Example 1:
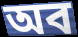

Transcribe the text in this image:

অব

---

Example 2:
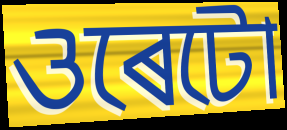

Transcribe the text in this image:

ওৰেটো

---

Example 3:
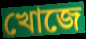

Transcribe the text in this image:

খোজে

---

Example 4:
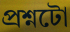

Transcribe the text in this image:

প্ৰশ্নটো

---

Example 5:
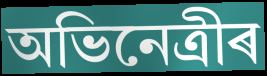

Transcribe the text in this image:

অভিনেত্ৰীৰ